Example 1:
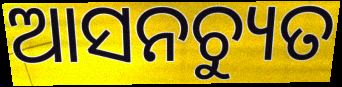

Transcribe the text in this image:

ଆସନଚ୍ୟୁତ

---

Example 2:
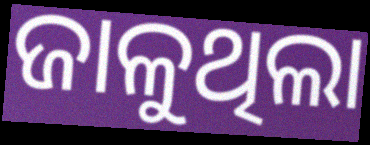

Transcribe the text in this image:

ଜାଳୁଥିଲା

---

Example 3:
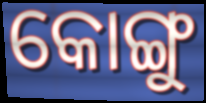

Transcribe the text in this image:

କୋଙ୍ଗୁ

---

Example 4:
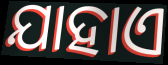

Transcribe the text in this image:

ଯାହାଏ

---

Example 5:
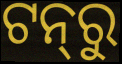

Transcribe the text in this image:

ଟନ୍‍ରୁ